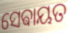
ସେଵାୟତ